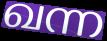
ഖന്ന